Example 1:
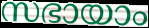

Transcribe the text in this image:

സഭായാം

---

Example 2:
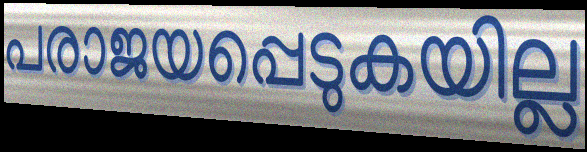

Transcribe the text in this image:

പരാജയപ്പെടുകയില്ല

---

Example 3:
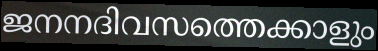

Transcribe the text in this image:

ജനനദിവസത്തെക്കാളും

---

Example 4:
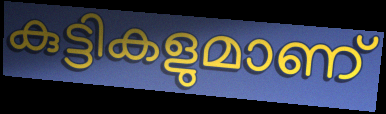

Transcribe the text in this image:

കുട്ടികളുമാണ്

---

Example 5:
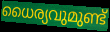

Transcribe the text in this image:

ധൈര്യവുമുണ്ട്